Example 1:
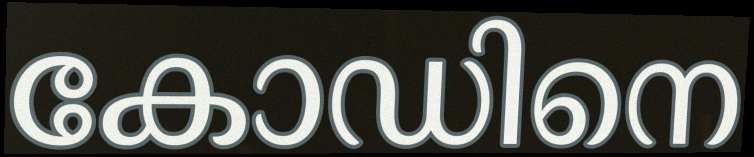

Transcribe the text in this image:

കോഡിനെ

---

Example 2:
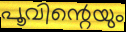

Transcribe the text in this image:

പൂവിന്റെയും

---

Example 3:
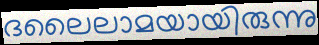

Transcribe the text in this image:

ദലൈലാമയായിരുന്നു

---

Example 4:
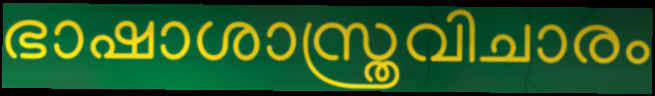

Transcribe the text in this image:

ഭാഷാശാസ്ത്രവിചാരം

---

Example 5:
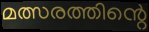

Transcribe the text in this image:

മത്സരത്തിന്റെ